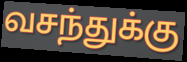
வசந்துக்கு